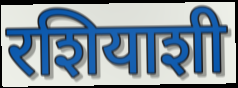
रशियाशी